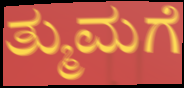
ತ್ಮುಮಗೆ